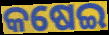
କଷେଇ